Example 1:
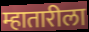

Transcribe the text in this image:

म्हातारीला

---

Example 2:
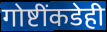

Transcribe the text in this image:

गोष्टींकडेही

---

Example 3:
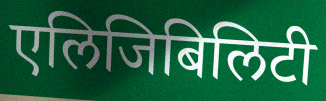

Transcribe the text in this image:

एलिजिबिलिटी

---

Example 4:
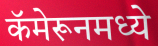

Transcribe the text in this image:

कॅमेरूनमध्ये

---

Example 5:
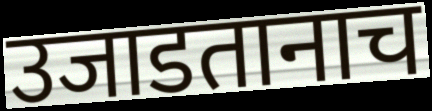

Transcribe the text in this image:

उजाडतानाच